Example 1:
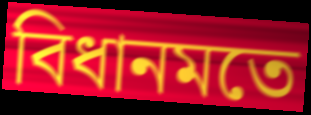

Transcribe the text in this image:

বিধানমতে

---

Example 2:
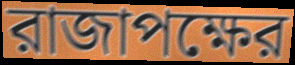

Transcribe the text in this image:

রাজাপক্ষের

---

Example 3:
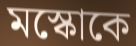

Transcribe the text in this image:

মস্কোকে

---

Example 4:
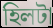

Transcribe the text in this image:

হিলটা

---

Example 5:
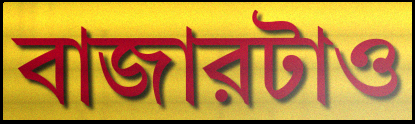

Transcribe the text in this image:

বাজারটাও